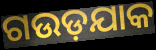
ଗଉଡ଼ଯାକ